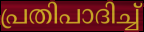
പ്രതിപാദിച്ച്